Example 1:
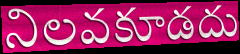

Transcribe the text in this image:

నిలవకూడదు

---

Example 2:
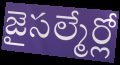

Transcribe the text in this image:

జైసల్మేర్లో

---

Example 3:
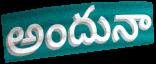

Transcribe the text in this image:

అందునా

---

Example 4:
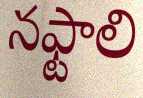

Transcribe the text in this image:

నఫ్టాలి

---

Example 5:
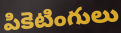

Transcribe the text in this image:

పికెటింగులు